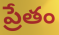
ప్రేతం